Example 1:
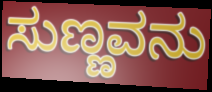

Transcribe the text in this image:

ಸುಣ್ಣವನು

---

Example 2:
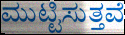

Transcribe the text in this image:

ಮುಟ್ಟಿಸುತ್ತವೆ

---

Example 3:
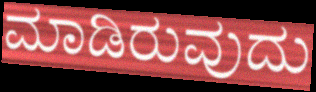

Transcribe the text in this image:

ಮಾಡಿರುವುದು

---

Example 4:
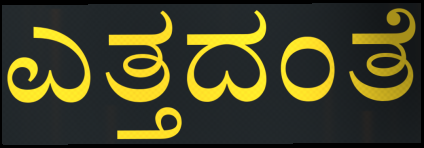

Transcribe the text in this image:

ಎತ್ತದಂತೆ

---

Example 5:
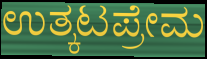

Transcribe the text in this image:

ಉತ್ಕಟಪ್ರೇಮ